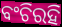
ବଂଚିରହି